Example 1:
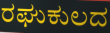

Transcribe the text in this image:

ರಘುಕುಲದ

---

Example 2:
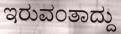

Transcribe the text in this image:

ಇರುವಂತಾದ್ದು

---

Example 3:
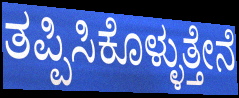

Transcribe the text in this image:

ತಪ್ಪಿಸಿಕೊಳ್ಳುತ್ತೇನೆ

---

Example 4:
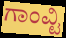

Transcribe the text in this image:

ಗಾಂವ್ಟಿ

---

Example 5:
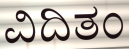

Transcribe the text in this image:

ವಿದಿತಂ